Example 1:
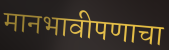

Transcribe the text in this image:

मानभावीपणाचा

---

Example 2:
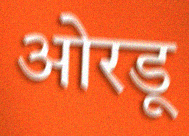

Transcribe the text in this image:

ओरडू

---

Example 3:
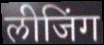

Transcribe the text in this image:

लीजिंग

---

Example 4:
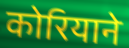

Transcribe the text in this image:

कोरियाने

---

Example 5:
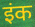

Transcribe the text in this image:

इंक